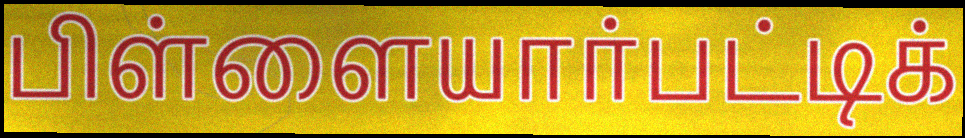
பிள்ளையார்பட்டிக்